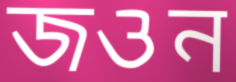
জওন